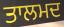
ਤਾਲਮਦ